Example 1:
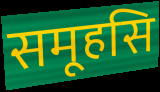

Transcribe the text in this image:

समूहसि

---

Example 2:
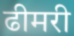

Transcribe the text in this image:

ढीमरी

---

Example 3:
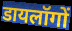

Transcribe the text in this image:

डायलॉगों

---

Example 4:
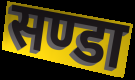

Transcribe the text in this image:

सण्डा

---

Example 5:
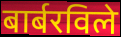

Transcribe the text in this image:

बार्बरविले